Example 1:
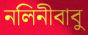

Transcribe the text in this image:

নলিনীবাবু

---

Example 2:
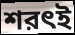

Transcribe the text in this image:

শরৎই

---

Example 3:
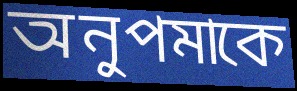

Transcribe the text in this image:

অনুপমাকে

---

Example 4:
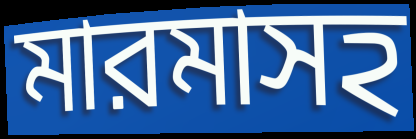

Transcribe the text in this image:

মারমাসহ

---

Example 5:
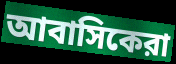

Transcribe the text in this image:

আবাসিকেরা